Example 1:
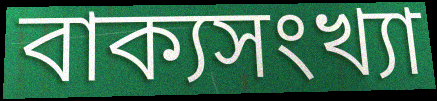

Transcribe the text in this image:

বাক্যসংখ্যা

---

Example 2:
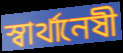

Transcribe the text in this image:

স্বার্থানেষী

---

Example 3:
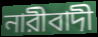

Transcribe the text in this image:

নারীবাদী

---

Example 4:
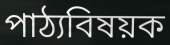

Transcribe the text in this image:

পাঠ্যবিষয়ক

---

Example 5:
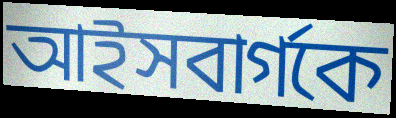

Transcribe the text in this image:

আইসবার্গকে